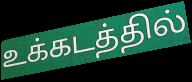
உக்கடத்தில்